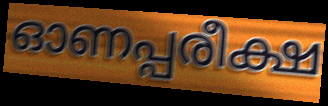
ഓണപ്പരീക്ഷ